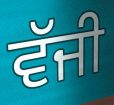
ਵੱਜੀ